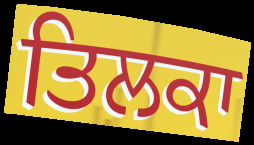
ਤਿਲਕਾ